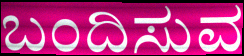
ಬಂದಿಸುವ